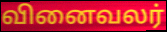
வினைவலர்